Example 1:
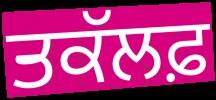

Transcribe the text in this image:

ਤਕੱਲਫ਼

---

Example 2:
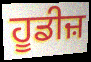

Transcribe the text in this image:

ਹੂਡੀਜ਼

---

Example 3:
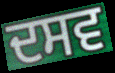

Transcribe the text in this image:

ਦਸਵ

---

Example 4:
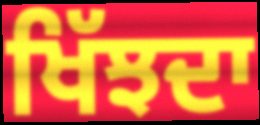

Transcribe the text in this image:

ਖਿੱਝਦਾ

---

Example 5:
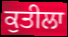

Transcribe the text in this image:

ਕੁਤੀਲਾ